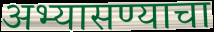
अभ्यासण्याचा